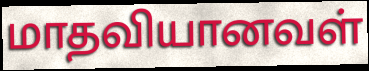
மாதவியானவள்